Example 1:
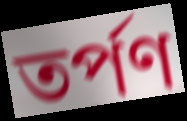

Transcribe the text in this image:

তর্পণ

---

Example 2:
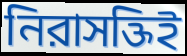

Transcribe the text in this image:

নিরাসক্তিই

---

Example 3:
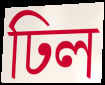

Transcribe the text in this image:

ঢিল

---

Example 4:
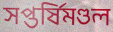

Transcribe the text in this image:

সপ্তর্ষিমণ্ডল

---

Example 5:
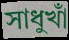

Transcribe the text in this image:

সাধুখাঁ